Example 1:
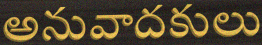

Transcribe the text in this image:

అనువాదకులు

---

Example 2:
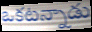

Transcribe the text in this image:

ఒకటన్నాడు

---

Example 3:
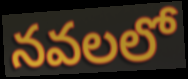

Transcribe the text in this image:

నవలలో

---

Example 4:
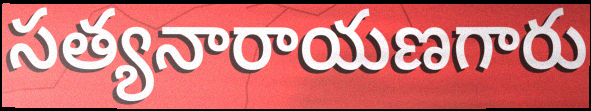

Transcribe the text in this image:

సత్యనారాయణగారు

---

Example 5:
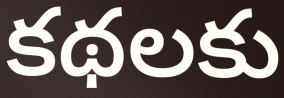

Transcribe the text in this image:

కథలకు